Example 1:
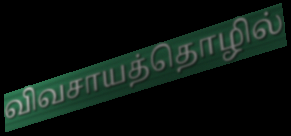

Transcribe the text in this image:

விவசாயத்தொழில்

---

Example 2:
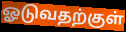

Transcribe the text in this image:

ஓடுவதற்குள்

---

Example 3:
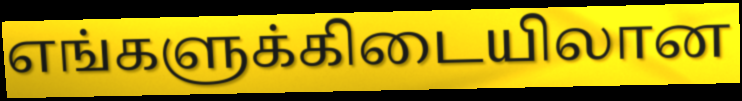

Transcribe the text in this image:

எங்களுக்கிடையிலான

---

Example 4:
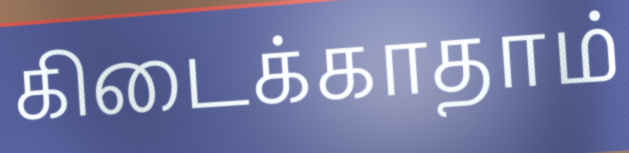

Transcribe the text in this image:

கிடைக்காதாம்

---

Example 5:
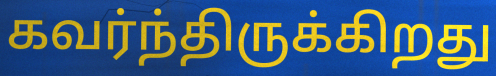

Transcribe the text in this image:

கவர்ந்திருக்கிறது